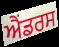
ਐਂਡਰਸ